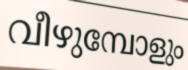
വീഴുമ്പോളും